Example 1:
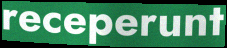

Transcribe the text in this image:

receperunt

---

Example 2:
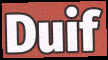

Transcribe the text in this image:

Duif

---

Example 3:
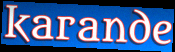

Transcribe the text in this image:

karande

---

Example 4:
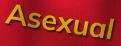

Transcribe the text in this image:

Asexual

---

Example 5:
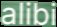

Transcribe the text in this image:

alibi